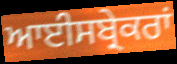
ਆਈਸਬ੍ਰੇਕਰਾਂ